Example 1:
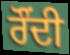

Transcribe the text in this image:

ਰੌਂਦੀ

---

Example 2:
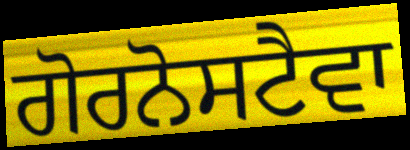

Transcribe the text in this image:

ਗੋਰਨੋਸਟੈਵਾ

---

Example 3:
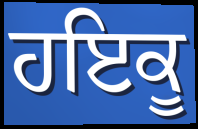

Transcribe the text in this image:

ਹਇਕੂ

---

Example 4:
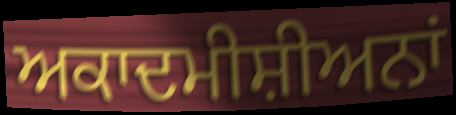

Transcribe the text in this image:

ਅਕਾਦਮੀਸ਼ੀਅਨਾਂ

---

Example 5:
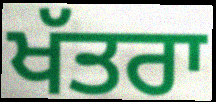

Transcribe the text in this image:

ਖੱਤਰਾ